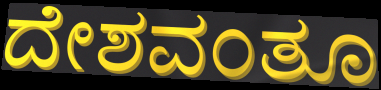
ದೇಶವಂತೂ